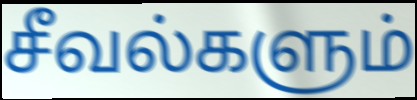
சீவல்களும்